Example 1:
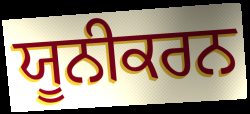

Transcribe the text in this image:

ਯੂਨੀਕਰਨ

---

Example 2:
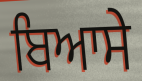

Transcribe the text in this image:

ਬਿਆਸੇ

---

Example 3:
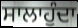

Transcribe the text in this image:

ਸਾਲਾਹੁੰਦਾ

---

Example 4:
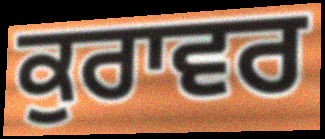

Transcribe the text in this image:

ਕੁਰਾਵਰ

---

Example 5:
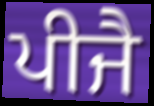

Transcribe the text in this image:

ਪੀਜੈ